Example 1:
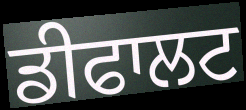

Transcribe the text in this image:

ਡੀਫਾਲਟ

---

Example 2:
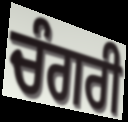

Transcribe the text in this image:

ਚੰਗਰੀ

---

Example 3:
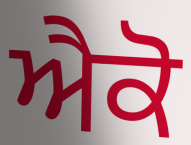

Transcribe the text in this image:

ਐਕੋ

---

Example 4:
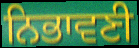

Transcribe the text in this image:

ਨਿਭਾਵਣੀ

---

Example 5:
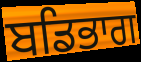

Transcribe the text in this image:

ਬਡਿਭਾਗ